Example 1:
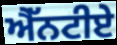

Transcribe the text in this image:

ਐੱਨਟੀਏ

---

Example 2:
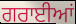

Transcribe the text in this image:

ਗਰਾਈਆਂ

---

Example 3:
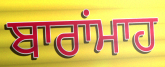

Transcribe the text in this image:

ਬਾਰਾਂਮਾਹ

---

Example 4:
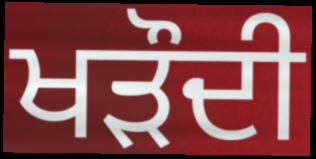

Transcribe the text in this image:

ਖੜੌਦੀ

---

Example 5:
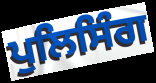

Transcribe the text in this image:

ਪੁਲਿਸਿੰਗ